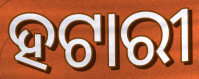
ହଟାରୀ